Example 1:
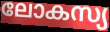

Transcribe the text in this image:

ലോകസ്യ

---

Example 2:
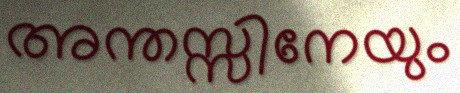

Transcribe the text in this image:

അന്തസ്സിനേയും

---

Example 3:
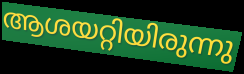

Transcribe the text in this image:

ആശയറ്റിയിരുന്നു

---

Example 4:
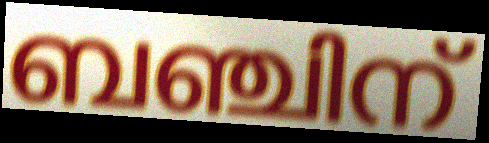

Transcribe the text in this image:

ബഞ്ചിന്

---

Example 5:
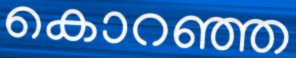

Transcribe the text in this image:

കൊറഞ്ഞ